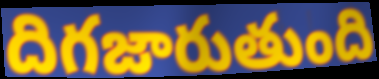
దిగజారుతుంది